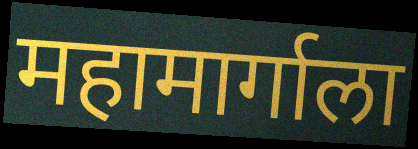
महामार्गाला